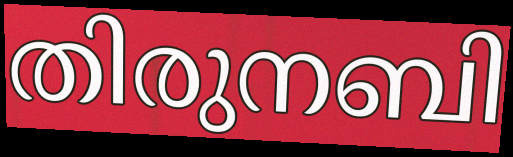
തിരുനബി